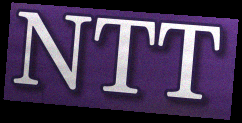
NTT